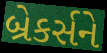
બ્રેકર્સને